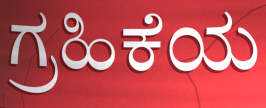
ಗ್ರಹಿಕೆಯ